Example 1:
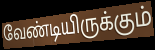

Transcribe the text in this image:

வேண்டியிருக்கும்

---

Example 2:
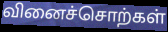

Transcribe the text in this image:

வினைச்சொற்கள்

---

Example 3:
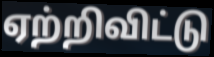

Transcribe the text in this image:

ஏற்றிவிட்டு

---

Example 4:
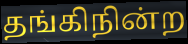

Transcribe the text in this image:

தங்கிநின்ற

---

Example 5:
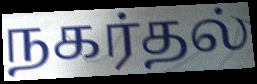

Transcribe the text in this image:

நகர்தல்